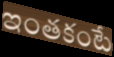
ఇంతకంటే